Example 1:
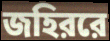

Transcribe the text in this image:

জহিররে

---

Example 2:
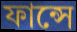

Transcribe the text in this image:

ফান্সে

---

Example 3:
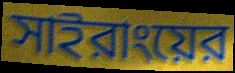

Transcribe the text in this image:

সাইরাংয়ের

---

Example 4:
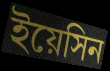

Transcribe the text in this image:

ইয়েসিন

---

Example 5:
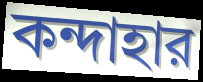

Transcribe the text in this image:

কন্দাহার